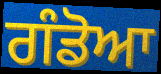
ਗੰਡੋਆ